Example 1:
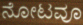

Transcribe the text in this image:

ನೋಟವೂ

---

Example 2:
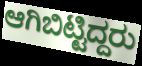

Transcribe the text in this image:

ಆಗಿಬಿಟ್ಟಿದ್ದರು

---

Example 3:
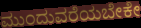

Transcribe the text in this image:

ಮುಂದುವರೆಯಬೇಕೇ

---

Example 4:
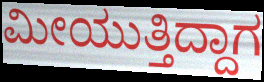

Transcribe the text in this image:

ಮೀಯುತ್ತಿದ್ದಾಗ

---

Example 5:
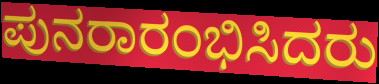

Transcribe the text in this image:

ಪುನರಾರಂಭಿಸಿದರು